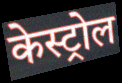
केस्ट्रोल